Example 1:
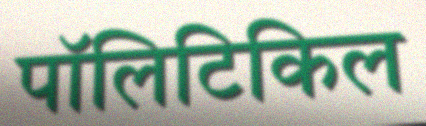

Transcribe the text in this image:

पॉलिटिकिल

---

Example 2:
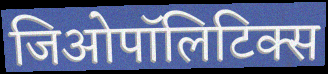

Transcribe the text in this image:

जिओपॉलिटिक्स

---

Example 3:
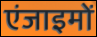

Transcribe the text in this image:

एंजाइमों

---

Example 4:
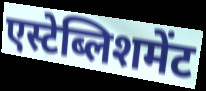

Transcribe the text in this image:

एस्टेब्लिशमेंट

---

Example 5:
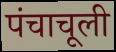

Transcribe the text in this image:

पंचाचूली